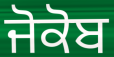
ਜੋਕੋਬ